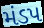
મંડપ